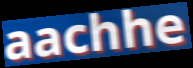
aachhe